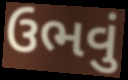
ઉભવું